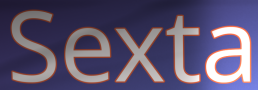
Sexta